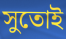
সুতোই